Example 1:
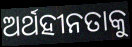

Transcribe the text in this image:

ଅର୍ଥହୀନତାକୁ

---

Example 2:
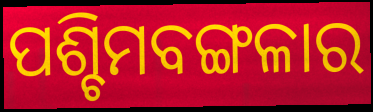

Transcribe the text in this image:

ପଶ୍ଚିମବଙ୍ଗଳାର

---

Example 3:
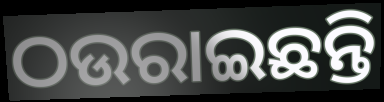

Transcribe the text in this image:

ଠଉରାଇଛନ୍ତି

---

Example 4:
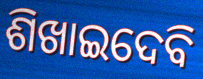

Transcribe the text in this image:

ଶିଖାଇଦେବି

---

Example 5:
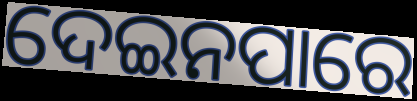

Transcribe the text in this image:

ଦେଇନପାରେ